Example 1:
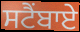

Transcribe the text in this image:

ਸਟੈਂਬਾਏ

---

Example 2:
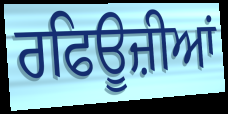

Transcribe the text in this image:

ਰਫਿਊਜ਼ੀਆਂ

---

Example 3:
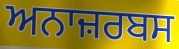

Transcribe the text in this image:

ਅਨਾਜ਼ਰਬਸ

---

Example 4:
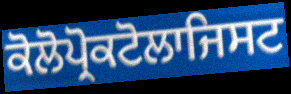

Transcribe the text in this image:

ਕੋਲੋਪ੍ਰੋਕਟੋਲਾਜਿਸਟ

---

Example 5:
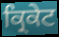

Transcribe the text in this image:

ਕ੍ਰਿਕੇਟ